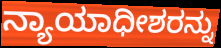
ನ್ಯಾಯಾಧೀಶರನ್ನು